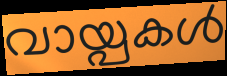
വായ്പകൾ